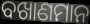
ବଖାଣମାନ